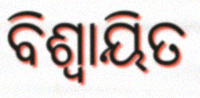
ବିଶ୍ବାୟିତ